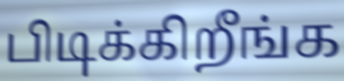
பிடிக்கிறீங்க